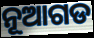
ନୂଆଗଡ